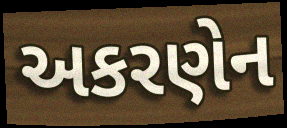
અકરણેન